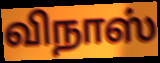
விநாஸ்